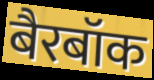
बैरबॉक